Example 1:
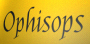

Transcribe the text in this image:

Ophisops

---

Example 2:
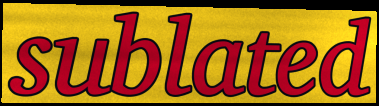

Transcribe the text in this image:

sublated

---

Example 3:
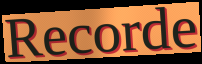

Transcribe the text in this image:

Recorde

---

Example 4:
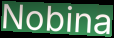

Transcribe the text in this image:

Nobina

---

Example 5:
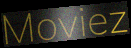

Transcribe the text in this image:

Moviez